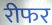
रीफर